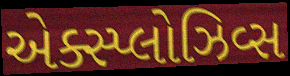
એક્સ્પ્લોઝિવ્સ